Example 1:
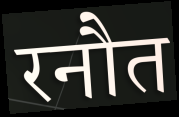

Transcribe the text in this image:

रनौत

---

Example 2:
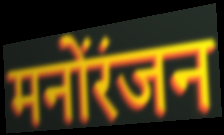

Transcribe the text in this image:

मनोंरंजन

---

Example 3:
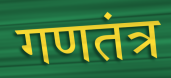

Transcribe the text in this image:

गणतंत्र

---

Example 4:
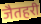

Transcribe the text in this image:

जैतहरी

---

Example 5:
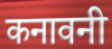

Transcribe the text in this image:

कनावनी